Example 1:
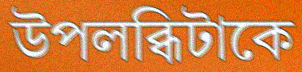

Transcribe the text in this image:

উপলব্ধিটাকে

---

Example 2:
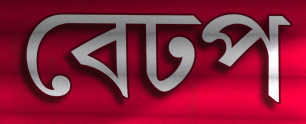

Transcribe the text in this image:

বেঢপ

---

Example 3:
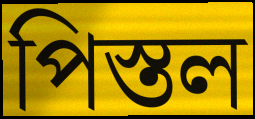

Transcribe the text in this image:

পিস্তল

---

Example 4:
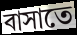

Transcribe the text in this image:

বাসাতে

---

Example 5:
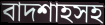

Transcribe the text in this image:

বাদশাহসহ